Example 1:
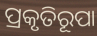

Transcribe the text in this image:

ପ୍ରକୃତିରୂପା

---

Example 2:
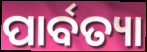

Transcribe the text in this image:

ପାର୍ବତ୍ୟା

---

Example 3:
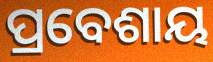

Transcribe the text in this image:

ପ୍ରବେଶାୟ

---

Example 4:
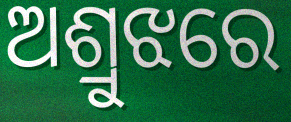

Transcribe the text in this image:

ଅଶ୍ରୁଝରେ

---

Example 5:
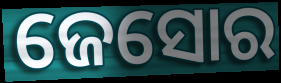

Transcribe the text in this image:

ଜେସୋର